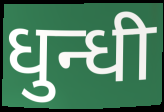
धुन्धी